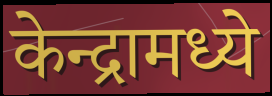
केन्द्रामध्ये